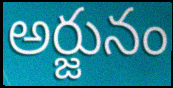
అర్జునం